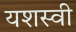
यशस्‍वी